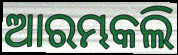
ଆରମ୍ଭକଲି